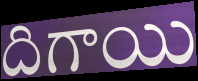
దిగాయి